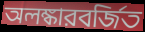
অলঙ্কারবর্জিত